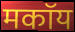
मकॉय